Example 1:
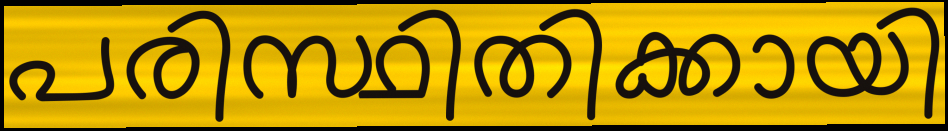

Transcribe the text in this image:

പരിസ്ഥിതിക്കായി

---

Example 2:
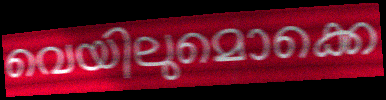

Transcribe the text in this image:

വെയിലുമൊക്കെ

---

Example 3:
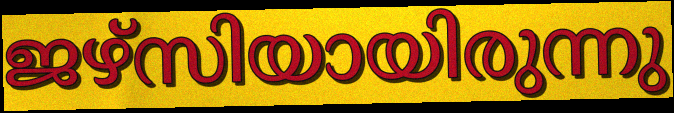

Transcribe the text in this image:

ജഴ്സിയായിരുന്നു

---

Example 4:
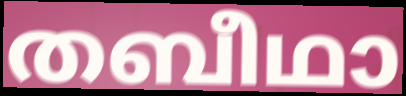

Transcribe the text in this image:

തബീഥാ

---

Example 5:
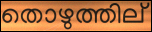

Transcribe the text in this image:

തൊഴുത്തില്